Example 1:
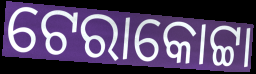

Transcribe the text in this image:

ଟେରାକୋଟ୍ଟା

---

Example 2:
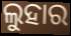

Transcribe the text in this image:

ଲୁହାର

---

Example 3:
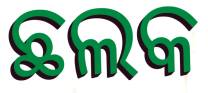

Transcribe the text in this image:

ଛଲକ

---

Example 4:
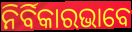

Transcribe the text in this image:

ନିର୍ବିକାରଭାବେ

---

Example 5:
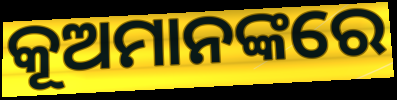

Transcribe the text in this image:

କୂଅମାନଙ୍କରେ